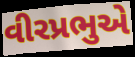
વીરપ્રભુએ